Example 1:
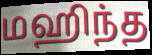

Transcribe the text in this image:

மஹிந்த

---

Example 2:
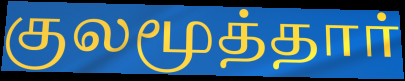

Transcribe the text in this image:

குலமூத்தார்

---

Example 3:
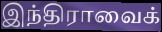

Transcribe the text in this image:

இந்திராவைக்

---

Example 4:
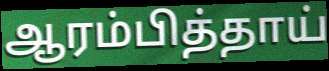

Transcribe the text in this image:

ஆரம்பித்தாய்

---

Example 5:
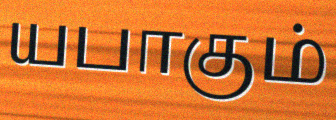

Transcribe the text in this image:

யபாகும்